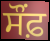
ਸੌਂਫ਼